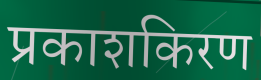
प्रकाशकिरण